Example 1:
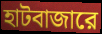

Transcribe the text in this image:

হাটবাজারে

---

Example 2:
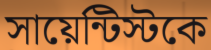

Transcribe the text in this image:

সায়েন্টিস্টকে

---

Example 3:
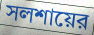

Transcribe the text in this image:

সলশায়ের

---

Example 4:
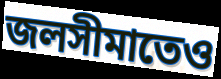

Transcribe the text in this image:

জলসীমাতেও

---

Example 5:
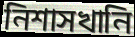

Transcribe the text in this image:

নিশাসখানি